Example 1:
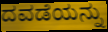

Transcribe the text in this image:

ದವಡೆಯನ್ನು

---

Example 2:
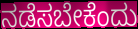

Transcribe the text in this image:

ನಡೆಸಬೇಕೆಂದು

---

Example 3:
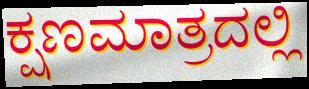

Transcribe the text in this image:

ಕ್ಷಣಮಾತ್ರದಲ್ಲಿ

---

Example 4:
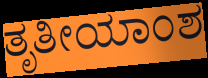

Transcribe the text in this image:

ತೃತೀಯಾಂಶ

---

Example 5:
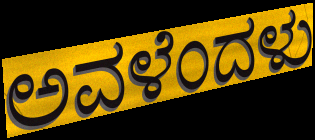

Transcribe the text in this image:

ಅವಳೆಂದಳು